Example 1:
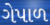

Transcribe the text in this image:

ગેપાળ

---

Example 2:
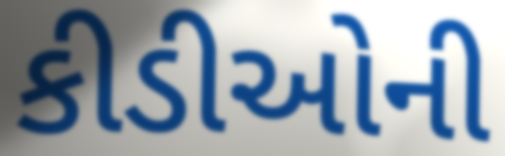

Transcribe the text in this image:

કીડીઓની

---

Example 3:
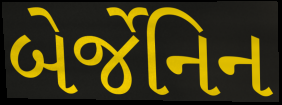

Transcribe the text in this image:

બેર્જેનિન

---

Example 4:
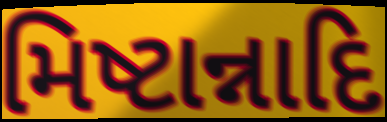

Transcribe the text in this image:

મિષ્ટાન્નાદિ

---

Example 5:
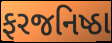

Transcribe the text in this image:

ફરજનિષ્ઠા